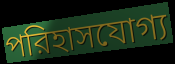
পরিহাসযোগ্য